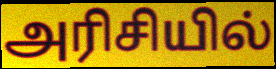
அரிசியில்